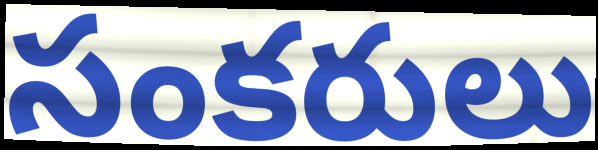
సంకరులు